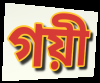
গয়ী